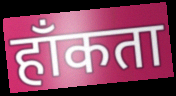
हाँकता